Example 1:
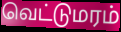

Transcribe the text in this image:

வெட்டுமரம்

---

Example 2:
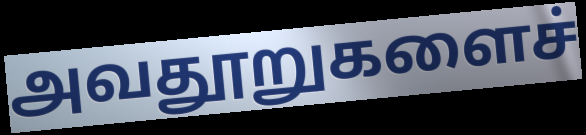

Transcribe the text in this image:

அவதூறுகளைச்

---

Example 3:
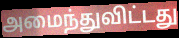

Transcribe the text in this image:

அமைந்துவிட்டது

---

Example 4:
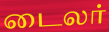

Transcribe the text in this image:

டைலர்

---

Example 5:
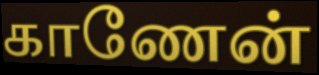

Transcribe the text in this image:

காணேன்